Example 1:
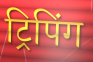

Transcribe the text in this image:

ट्रिपिंग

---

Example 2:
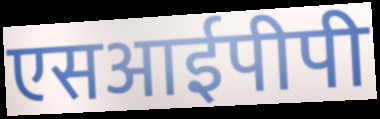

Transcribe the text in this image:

एसआईपीपी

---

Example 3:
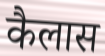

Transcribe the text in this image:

कैलास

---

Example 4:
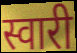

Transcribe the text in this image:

स्वारी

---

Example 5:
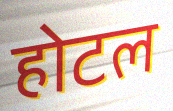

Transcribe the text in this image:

होटल